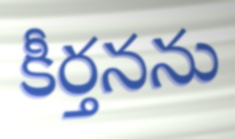
కీర్తనను